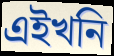
এইখনি